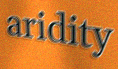
aridity